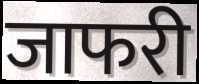
जाफरी